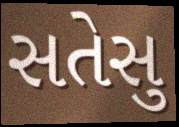
સતેસુ